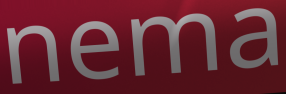
nema